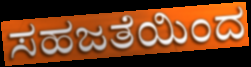
ಸಹಜತೆಯಿಂದ